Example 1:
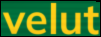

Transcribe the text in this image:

velut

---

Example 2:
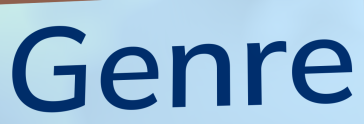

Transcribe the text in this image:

Genre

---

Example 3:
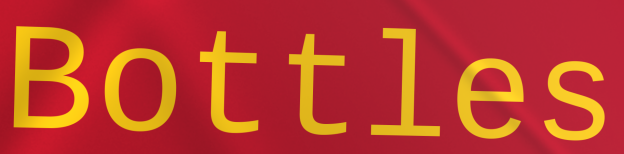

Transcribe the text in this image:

Bottles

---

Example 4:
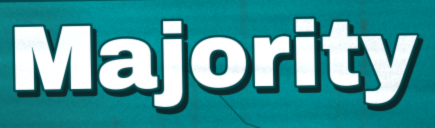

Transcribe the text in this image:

Majority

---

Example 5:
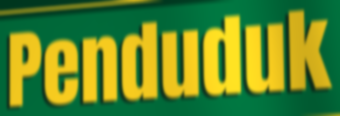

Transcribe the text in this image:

Penduduk